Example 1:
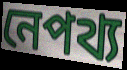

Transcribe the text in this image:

নেপথ্য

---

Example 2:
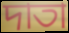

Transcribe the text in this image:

দাতা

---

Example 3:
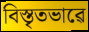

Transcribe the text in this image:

বিস্তৃতভাৱে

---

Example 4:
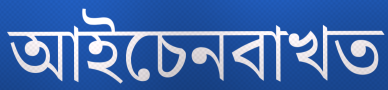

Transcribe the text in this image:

আইচেনবাখত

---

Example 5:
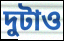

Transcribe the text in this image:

দুটাও